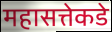
महासत्तेकडे